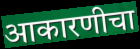
आकारणीचा